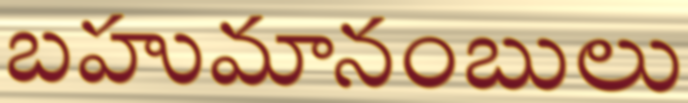
బహుమానంబులు